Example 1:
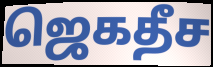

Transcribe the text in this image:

ஜெகதீச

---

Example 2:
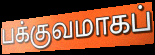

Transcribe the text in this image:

பக்குவமாகப்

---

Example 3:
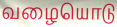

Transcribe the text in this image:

வழையொடு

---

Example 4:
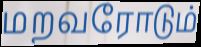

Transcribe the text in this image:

மறவரோடும்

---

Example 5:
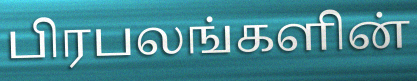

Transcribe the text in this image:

பிரபலங்களின்